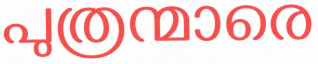
പുത്രന്മാരെ